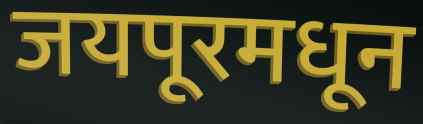
जयपूरमधून